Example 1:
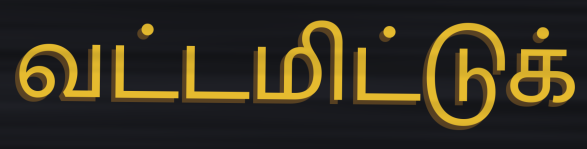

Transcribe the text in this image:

வட்டமிட்டுக்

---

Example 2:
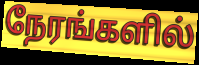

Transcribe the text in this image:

நேரங்களில்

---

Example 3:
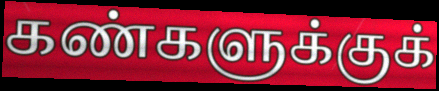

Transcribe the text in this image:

கண்களுக்குக்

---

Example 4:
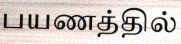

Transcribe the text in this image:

பயணத்தில்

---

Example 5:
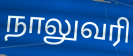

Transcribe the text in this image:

நாலுவரி